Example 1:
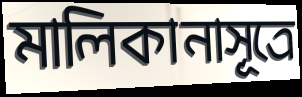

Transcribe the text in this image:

মালিকানাসূত্রে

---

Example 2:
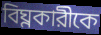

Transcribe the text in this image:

বিঘ্নকারীকে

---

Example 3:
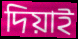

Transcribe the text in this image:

দিয়াই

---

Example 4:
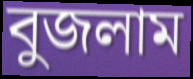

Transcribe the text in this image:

বুজলাম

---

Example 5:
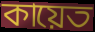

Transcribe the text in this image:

কায়েত